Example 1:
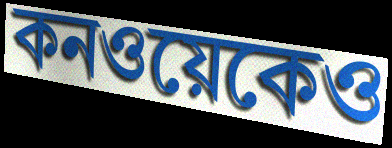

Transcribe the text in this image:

কনওয়েকেও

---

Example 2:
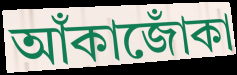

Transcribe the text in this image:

আঁকাজোঁকা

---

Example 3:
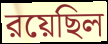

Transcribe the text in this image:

রয়েছিল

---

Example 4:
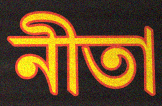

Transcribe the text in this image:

নীতা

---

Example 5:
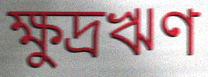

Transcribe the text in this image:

ক্ষুদ্রঋণ